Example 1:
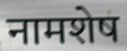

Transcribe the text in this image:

नामशेष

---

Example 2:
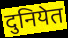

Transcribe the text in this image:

दुनियेत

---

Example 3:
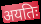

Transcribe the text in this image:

अयतिः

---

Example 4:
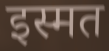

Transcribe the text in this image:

इस्मत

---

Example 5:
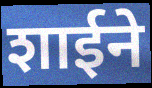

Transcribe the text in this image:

शाईने